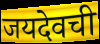
जयदेवची